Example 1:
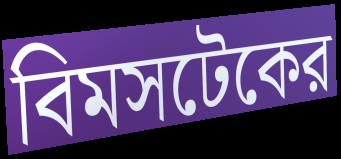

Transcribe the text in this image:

বিমসটেকের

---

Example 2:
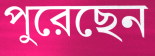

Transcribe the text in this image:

পুরেছেন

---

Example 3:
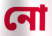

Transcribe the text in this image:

নো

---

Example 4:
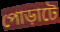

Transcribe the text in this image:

পোড়াটে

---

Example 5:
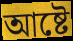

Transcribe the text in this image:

আষ্টে